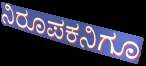
ನಿರೂಪಕನಿಗೂ